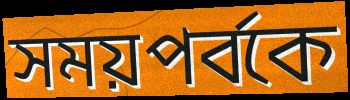
সময়পর্বকে